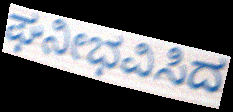
ಘನೀಭವಿಸಿದ